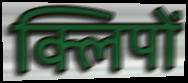
क्लिपों